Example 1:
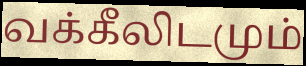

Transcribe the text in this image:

வக்கீலிடமும்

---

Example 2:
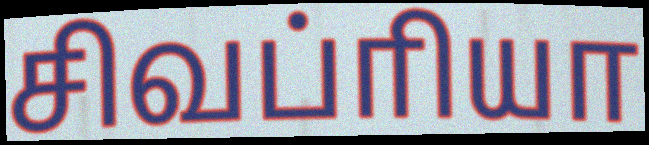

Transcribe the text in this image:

சிவப்ரியா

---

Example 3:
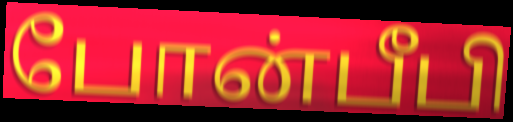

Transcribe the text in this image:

போன்பீபி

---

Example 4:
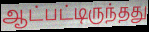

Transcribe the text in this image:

ஆட்பட்டிருந்தது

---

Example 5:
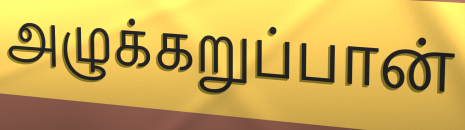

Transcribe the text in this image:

அழுக்கறுப்பான்